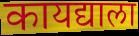
कायद्याला